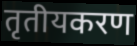
तृतीयकरण